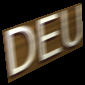
DEU